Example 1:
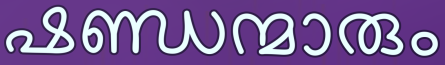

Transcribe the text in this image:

ഷണ്ഡന്മാരും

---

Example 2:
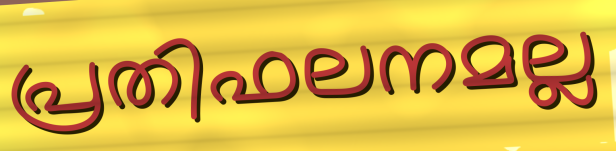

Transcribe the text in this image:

പ്രതിഫലനമല്ല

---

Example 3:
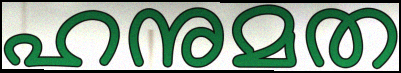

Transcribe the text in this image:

ഹനുമത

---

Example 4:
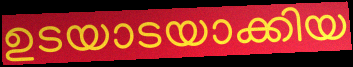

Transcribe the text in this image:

ഉടയാടയാക്കിയ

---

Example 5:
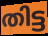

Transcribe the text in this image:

തിട്ട